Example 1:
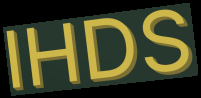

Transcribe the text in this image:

IHDS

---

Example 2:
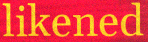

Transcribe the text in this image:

likened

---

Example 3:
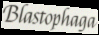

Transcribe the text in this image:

Blastophaga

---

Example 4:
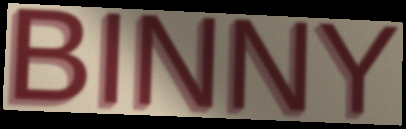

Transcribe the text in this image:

BINNY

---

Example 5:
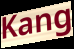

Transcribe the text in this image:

Kang